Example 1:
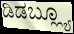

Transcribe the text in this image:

ಡಿಡಬ್ಲ್ಯೂ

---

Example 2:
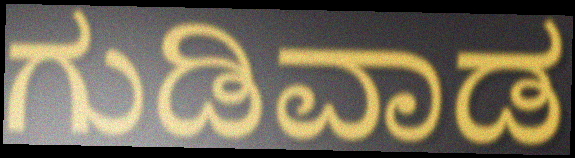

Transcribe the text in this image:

ಗುಡಿವಾಡ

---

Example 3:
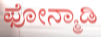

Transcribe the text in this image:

ಫೋನ್ಮಾಡಿ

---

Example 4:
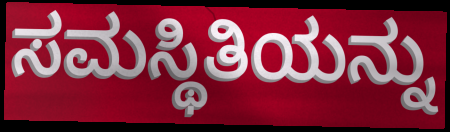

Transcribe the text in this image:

ಸಮಸ್ಥಿತಿಯನ್ನು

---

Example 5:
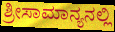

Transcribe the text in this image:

ಶ್ರೀಸಾಮಾನ್ಯನಲ್ಲಿ